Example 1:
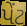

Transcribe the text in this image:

પેંટ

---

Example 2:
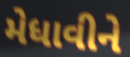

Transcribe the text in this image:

મેધાવીને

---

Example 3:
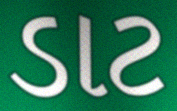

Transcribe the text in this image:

ડાટ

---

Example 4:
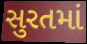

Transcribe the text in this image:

સુરતમાં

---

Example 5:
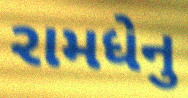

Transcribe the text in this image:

રામધેનુ